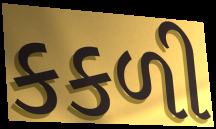
કકળી